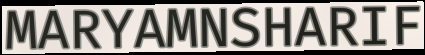
MARYAMNSHARIF